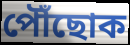
পৌঁছোক